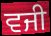
ਵਜੀ